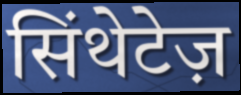
सिंथेटेज़